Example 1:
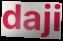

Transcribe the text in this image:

daji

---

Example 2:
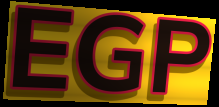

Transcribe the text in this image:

EGP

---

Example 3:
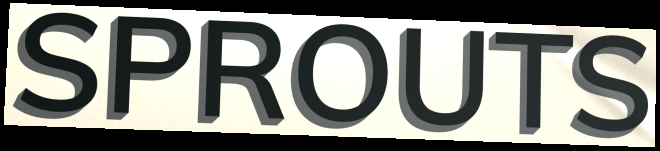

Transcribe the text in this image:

SPROUTS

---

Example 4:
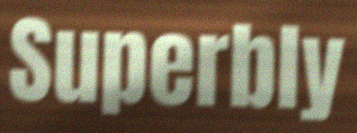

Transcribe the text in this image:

Superbly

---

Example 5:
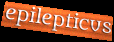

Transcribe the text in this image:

epilepticus